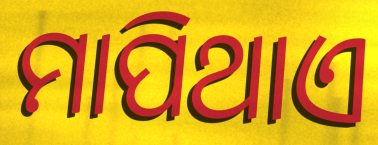
ମାପିଥାଏ